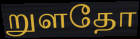
றுளதோ